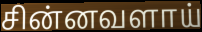
சின்னவளாய்